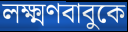
লক্ষ্মণবাবুকে